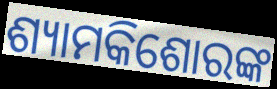
ଶ୍ୟାମକିଶୋରଙ୍କ